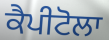
ਕੈਪੀਟੋਲਾ